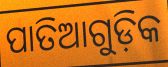
ପାତିଆଗୁଡ଼ିକ